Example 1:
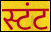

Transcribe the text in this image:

स्टंट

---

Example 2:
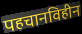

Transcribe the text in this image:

पहचानविहीन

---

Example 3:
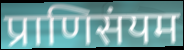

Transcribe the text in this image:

प्राणिसंयम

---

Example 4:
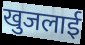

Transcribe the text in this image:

खुजलाई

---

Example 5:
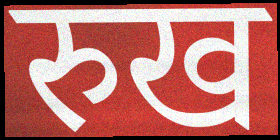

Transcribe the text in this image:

रुख